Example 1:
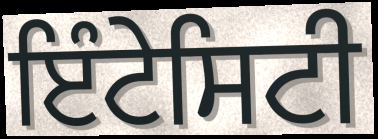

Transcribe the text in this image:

ਇੰਟੇਸਿਟੀ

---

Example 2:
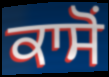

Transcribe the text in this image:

ਕਾਸੋਂ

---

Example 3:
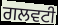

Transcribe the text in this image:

ਗਲਵਟੀ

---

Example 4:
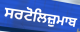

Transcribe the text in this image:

ਸਰਟੋਲਿਜ਼ੁਮਾਬ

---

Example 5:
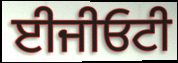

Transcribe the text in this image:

ਈਜੀਓਟੀ